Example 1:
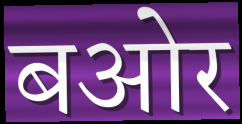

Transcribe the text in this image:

बओर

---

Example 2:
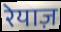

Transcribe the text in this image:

रेयाज़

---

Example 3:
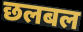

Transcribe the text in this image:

छलबल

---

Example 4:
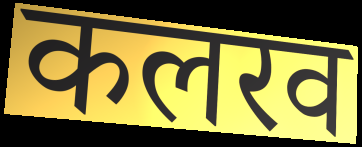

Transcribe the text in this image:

कलरव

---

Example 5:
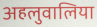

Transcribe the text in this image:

अहलुवालिया